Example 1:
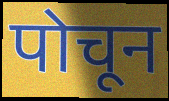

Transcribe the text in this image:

पोचून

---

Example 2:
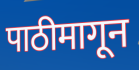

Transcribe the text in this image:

पाठीमागून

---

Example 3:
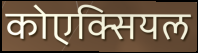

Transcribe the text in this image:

कोएक्सियल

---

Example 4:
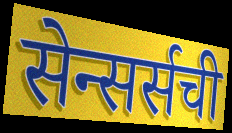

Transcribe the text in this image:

सेन्सर्सची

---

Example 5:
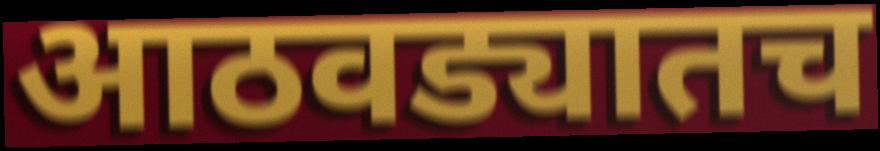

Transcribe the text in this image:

आठवड्यातच